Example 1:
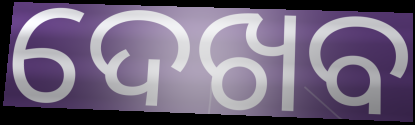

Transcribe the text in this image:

ଦେଖବ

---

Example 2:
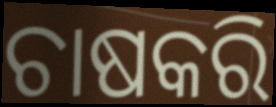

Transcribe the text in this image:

ଚାଷକରି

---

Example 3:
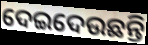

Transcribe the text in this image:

ଦେଇଦେଉଛନ୍ତି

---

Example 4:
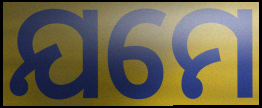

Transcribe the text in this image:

ଯମେ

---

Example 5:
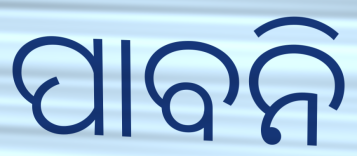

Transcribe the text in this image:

ପାବନି